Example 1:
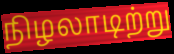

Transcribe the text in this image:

நிழலாடிற்று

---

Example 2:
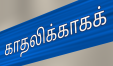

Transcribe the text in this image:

காதலிக்காகக்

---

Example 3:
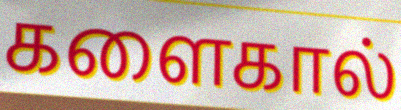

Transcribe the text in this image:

களைகால்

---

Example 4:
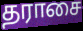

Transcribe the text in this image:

தராசை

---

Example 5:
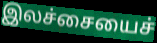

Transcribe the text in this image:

இலச்சையைச்